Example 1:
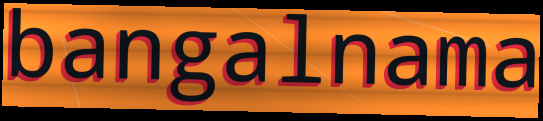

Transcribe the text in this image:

bangalnama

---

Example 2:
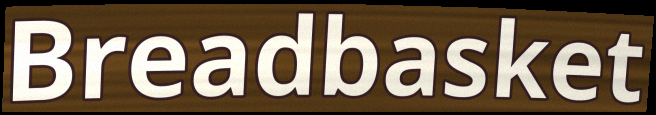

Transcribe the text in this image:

Breadbasket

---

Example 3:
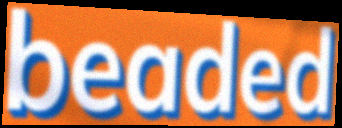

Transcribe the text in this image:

beaded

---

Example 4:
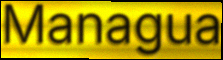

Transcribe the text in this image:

Managua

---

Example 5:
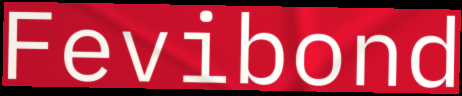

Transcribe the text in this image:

Fevibond